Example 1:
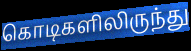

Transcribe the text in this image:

கொடிகளிலிருந்து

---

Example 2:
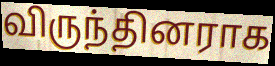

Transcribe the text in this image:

விருந்தினராக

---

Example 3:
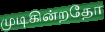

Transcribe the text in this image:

முடிகின்றதோ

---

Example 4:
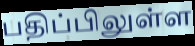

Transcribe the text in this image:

பதிப்பிலுள்ள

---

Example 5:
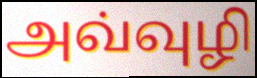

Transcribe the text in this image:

அவ்வுழி